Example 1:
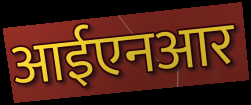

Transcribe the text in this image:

आईएनआर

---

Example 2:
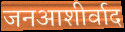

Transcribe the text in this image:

जनआशीर्वाद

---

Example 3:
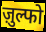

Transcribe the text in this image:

ज़ुल्फो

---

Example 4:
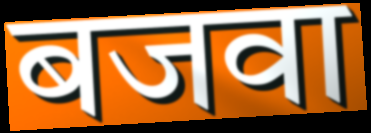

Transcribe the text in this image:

बजवा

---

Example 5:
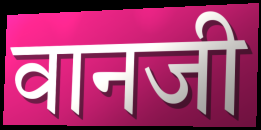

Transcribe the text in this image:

वानजी